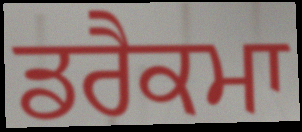
ਡਰੈਕਮਾ